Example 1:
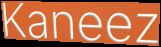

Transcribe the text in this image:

Kaneez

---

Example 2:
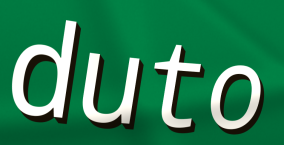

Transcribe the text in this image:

duto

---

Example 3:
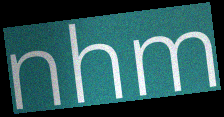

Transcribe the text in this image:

nhm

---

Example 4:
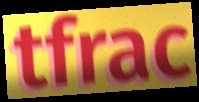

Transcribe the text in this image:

tfrac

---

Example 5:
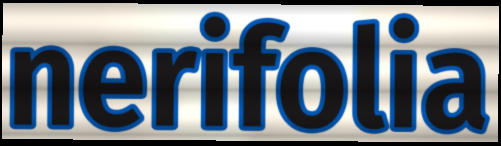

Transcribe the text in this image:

nerifolia